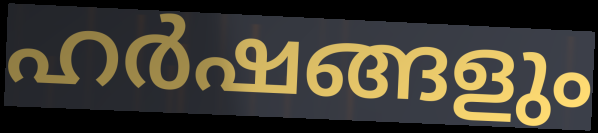
ഹർഷങ്ങളും